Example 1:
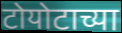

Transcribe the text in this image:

टोयोटाच्या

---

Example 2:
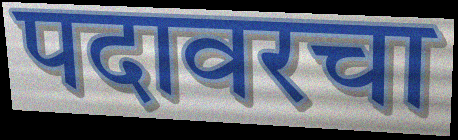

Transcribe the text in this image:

पदावरचा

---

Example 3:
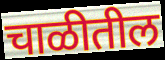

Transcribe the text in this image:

चाळीतील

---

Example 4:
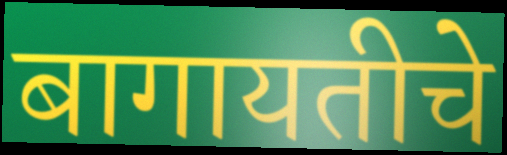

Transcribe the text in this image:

बागायतीचे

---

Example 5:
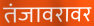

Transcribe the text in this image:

तंजावरावर